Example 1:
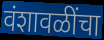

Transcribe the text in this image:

वंशावळींचा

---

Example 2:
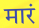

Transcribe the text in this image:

मारं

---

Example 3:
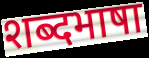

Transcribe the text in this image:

शब्दभाषा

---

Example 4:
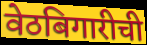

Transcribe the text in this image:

वेठबिगारीची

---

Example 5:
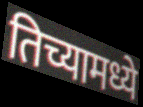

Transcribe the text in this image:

तिच्यामध्ये